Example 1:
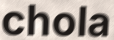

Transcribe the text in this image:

chola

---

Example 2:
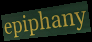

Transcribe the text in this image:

epiphany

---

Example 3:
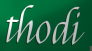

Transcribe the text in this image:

thodi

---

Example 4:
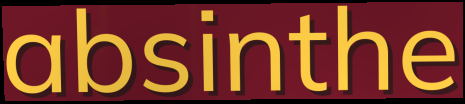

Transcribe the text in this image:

absinthe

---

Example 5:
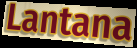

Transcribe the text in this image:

Lantana